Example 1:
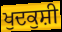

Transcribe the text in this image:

ਖੁਦਕੁਸ਼ੀ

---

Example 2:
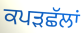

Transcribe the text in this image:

ਕਪੜਛੱਲਾਂ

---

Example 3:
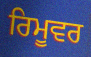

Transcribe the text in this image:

ਰਿਮੂਵਰ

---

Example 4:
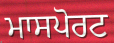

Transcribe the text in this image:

ਮਾਸਪੋਰਟ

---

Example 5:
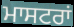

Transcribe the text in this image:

ਮਾਸਟਰਾਂ